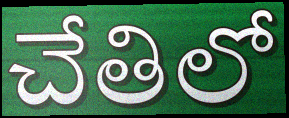
చేతిలో